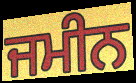
ਜਮੀਨ